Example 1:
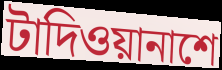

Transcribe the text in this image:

টাদিওয়ানাশে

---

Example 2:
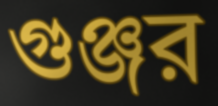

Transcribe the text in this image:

গুঞ্জর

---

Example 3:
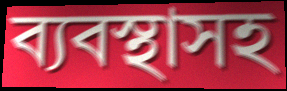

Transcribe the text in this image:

ব্যবস্থাসহ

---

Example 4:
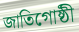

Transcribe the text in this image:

জাতিগোষ্ঠী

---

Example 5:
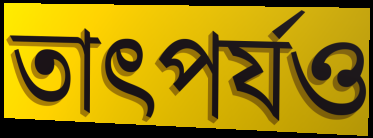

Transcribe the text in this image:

তাৎপর্যও